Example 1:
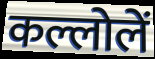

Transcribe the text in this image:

कल्लोलें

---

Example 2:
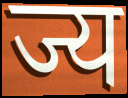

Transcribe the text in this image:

ज्य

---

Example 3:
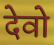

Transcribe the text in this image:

देवो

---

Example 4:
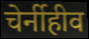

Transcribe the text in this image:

चेर्नीहीव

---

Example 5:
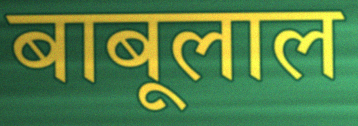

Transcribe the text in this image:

बाबूलाल